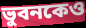
ভুবনকেও